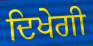
ਦਿਖੇਗੀ